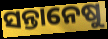
ସନ୍ତାନେଷୁ